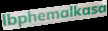
lbphemalkasa